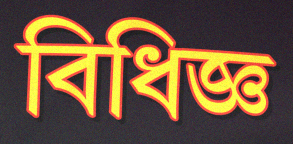
বিধিজ্ঞ